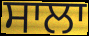
ਸਾਲਾ